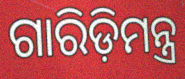
ଗାରିଡ଼ିମନ୍ତ୍ର